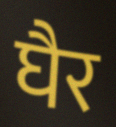
घैर